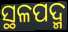
ସ୍ଥଳପଦ୍ମ